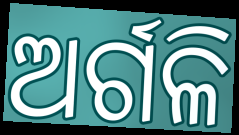
ଅର୍ଗଳି